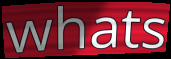
whats